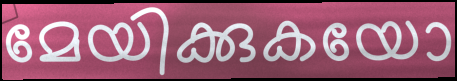
മേയിക്കുകയോ